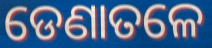
ଡେଣାତଳେ